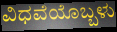
ವಿಧವೆಯೊಬ್ಬಳು